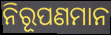
ନିରୂପଣମାନ